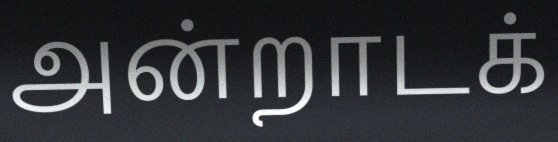
அன்றாடக்